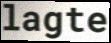
lagte